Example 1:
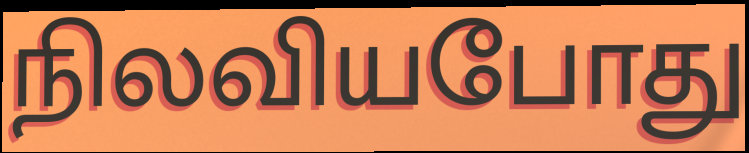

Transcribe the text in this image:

நிலவியபோது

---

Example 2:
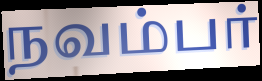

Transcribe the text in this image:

நவம்பர்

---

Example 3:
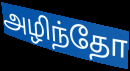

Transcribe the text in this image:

அழிந்தோ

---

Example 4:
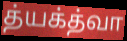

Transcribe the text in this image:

த்யக்த்வா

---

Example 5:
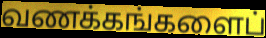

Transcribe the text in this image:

வணக்கங்களைப்